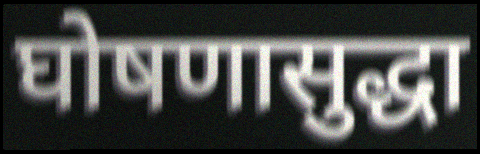
घोषणासुद्धा